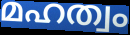
മഹത്വം